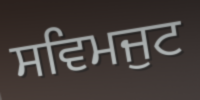
ਸਵਿਮਜੁਟ